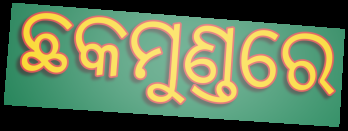
ଛକମୁଣ୍ଡରେ